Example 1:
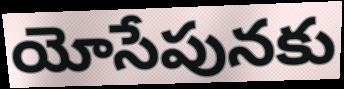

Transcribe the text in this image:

యోసేపునకు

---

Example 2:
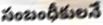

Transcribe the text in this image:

సంబంధీకులనే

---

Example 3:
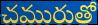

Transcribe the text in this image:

చమురుతో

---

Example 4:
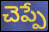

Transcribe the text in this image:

చెప్పే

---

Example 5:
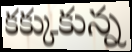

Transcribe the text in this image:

కక్కుకున్న